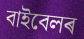
বাইবেলৰ